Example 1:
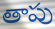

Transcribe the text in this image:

తాపు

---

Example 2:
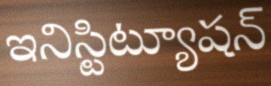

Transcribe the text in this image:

ఇనిస్టిట్యూషన్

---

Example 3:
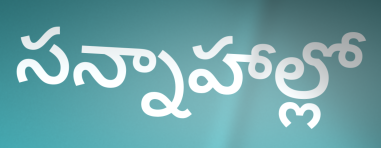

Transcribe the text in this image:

సన్నాహాల్లో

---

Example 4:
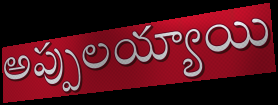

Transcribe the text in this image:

అప్పులయ్యాయి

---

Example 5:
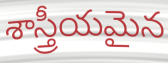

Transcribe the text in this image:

శాస్త్రీయమైన